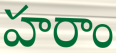
హరాం